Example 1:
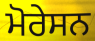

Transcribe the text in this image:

ਮੋਰੇਸਨ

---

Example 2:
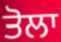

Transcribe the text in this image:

ਤੋਲਾ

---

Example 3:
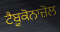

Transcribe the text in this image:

ਟੈਬੂਕੋਨਾਜ਼ੋਲ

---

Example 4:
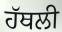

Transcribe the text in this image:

ਹੱਥਲੀ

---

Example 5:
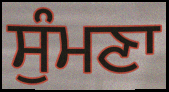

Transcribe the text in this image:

ਸੁੰਮਣਾ